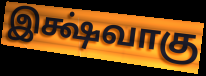
இக்ஷ்வாகு